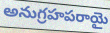
అనుగ్రహపరాయై